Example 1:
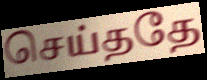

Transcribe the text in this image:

செய்ததே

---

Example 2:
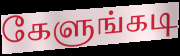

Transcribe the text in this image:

கேளுங்கடி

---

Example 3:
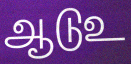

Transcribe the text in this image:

ஆடுஉ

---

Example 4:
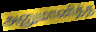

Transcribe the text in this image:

அனுமானித்த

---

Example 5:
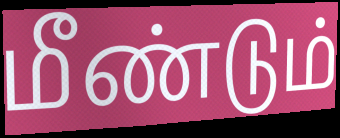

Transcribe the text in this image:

மீண்டும்